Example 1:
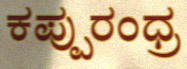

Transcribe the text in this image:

ಕಪ್ಪುರಂಧ್ರ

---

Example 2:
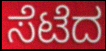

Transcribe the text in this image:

ಸೆಟೆದ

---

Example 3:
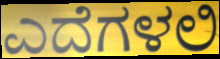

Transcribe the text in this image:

ಎದೆಗಳಲಿ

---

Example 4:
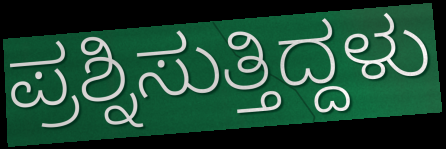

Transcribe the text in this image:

ಪ್ರಶ್ನಿಸುತ್ತಿದ್ದಳು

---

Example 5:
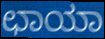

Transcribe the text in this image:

ಛಾಯಾ